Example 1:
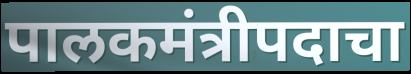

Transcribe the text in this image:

पालकमंत्रीपदाचा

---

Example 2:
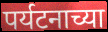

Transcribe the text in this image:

पर्यटनाच्या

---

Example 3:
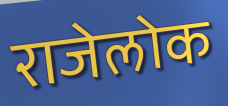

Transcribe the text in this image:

राजेलोक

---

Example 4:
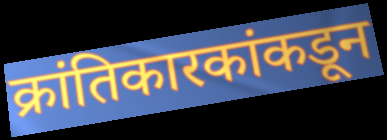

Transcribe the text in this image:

क्रांतिकारकांकडून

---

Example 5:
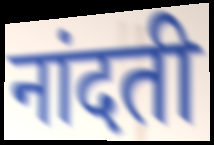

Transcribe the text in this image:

नांदती